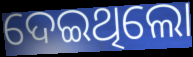
ଦେଇଥିଲୋ